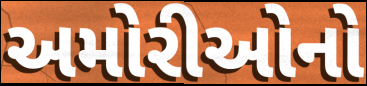
અમોરીઓનો